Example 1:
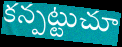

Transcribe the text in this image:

కన్పట్టుచూ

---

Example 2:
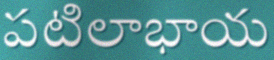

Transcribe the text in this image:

పటిలాభాయ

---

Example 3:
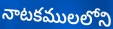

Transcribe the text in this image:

నాటకములలోని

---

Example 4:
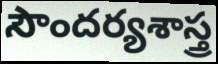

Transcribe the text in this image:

సౌందర్యశాస్త్ర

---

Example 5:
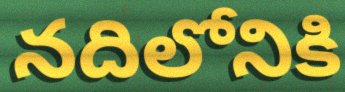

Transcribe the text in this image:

నదిలోనికి